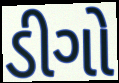
ડીગો